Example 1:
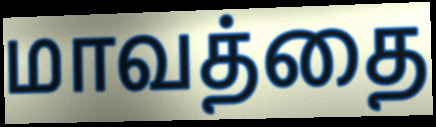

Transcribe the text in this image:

மாவத்தை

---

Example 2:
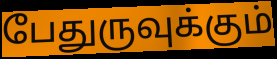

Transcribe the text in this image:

பேதுருவுக்கும்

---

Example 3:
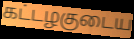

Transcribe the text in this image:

கட்டழகுடைய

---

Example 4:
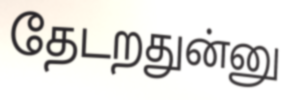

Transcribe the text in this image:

தேடறதுன்னு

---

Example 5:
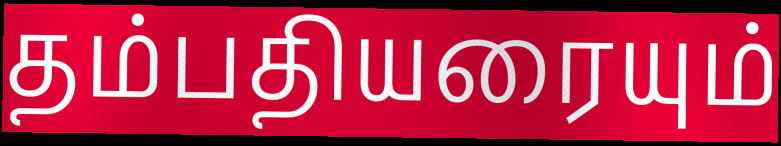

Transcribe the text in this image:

தம்பதியரையும்